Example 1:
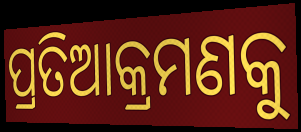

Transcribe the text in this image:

ପ୍ରତିଆକ୍ରମଣକୁ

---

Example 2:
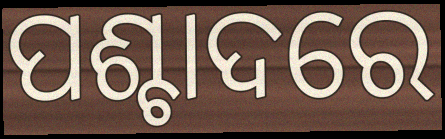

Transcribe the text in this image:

ପଶ୍ଚାଦରେ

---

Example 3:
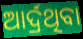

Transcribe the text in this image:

ଆର୍ଦ୍ରଥିବା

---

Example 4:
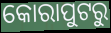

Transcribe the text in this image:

କୋରାପୁଟରୁ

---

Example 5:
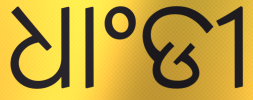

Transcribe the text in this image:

ଧାଂଡୀ